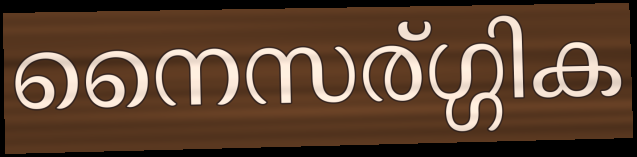
നൈസര്ഗ്ഗിക